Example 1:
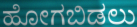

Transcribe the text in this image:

ಹೋಗಬಿಡಲು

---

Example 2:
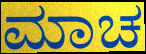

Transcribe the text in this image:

ಮಾಚ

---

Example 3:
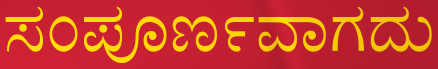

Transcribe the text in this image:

ಸಂಪೂರ್ಣವಾಗದು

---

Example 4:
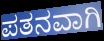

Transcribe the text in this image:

ಪತನವಾಗಿ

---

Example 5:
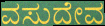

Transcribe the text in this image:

ವಸುದೇವ